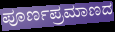
ಪೂರ್ಣಪ್ರಮಾಣದ